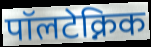
पॉलटेक्निक